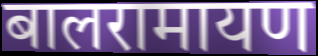
बालरामायण